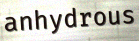
anhydrous